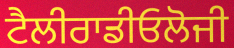
ਟੈਲੀਰਾਡੀਓਲੋਜੀ